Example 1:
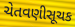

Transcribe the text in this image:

ચેતવણીસૂચક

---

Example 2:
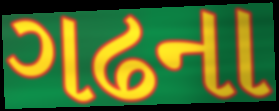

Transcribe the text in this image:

ગઢના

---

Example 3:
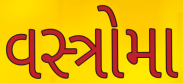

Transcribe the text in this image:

વસ્ત્રોમા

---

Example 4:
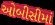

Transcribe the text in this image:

ઓબીસીમાં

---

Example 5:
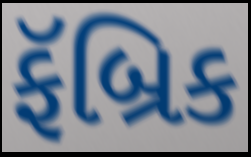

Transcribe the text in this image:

ફૅબ્રિક